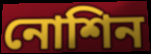
নোশিন